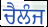
ਚੈਲੰਜ